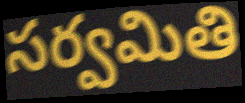
సర్వమితి